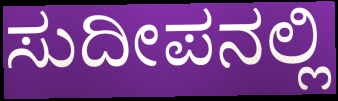
ಸುದೀಪನಲ್ಲಿ